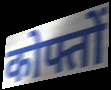
कोफ्तों